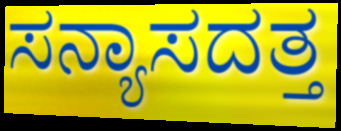
ಸನ್ಯಾಸದತ್ತ